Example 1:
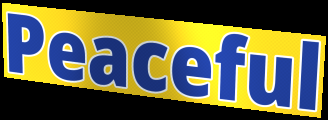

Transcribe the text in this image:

Peaceful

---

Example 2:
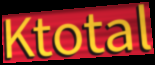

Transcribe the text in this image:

Ktotal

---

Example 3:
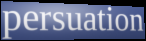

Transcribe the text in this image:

persuation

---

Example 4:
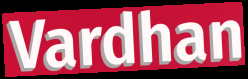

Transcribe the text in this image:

Vardhan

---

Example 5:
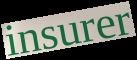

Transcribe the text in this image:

insurer